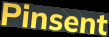
Pinsent